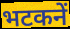
भटकनें